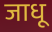
जाधू